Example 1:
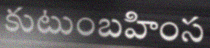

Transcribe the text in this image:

కుటుంబహింస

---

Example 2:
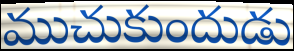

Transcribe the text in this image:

ముచుకుందుడు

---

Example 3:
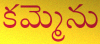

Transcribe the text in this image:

కమ్మెను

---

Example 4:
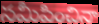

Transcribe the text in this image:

సమీపించినా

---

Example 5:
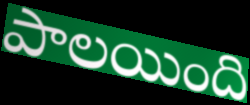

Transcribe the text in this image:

పాలయింది